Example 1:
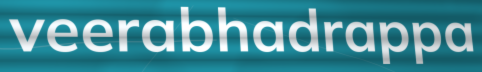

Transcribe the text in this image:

veerabhadrappa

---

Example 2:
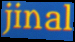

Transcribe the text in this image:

jinal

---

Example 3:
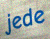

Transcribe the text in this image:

jede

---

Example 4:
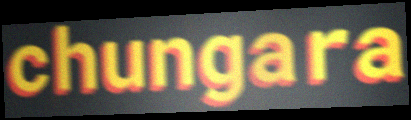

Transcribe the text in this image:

chungara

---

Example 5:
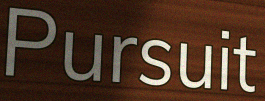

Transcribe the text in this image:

Pursuit